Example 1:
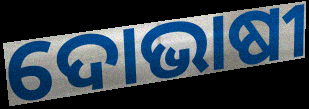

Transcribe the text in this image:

ଦୋଭାଷୀ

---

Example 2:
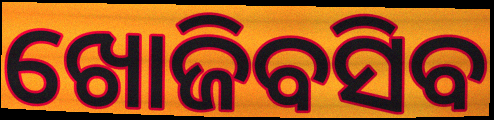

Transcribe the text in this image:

ଖୋଜିବସିବ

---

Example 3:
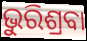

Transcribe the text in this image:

ଭୁରିଶ୍ରବା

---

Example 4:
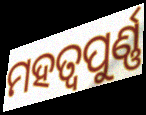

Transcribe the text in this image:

ମହତ୍ୱପୁର୍ଣ୍ଣ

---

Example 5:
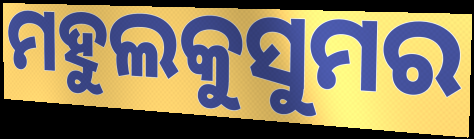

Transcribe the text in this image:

ମହୁଲକୁସୁମର